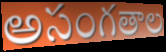
అసంగతాల